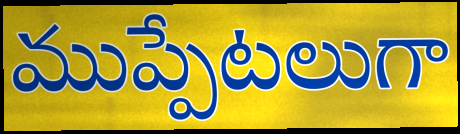
ముప్పేటలుగా